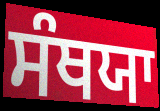
ਸੰਥਯਾ